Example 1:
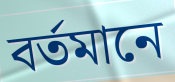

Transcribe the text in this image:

বৰ্তমানে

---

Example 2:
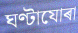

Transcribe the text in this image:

ঘণ্টাযোৰা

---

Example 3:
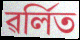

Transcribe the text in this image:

ৱৰ্লিত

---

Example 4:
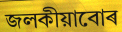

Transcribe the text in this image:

জলকীয়াবোৰ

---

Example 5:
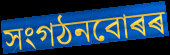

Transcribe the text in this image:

সংগঠনবোৰৰ